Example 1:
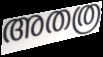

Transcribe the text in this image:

അതത്ര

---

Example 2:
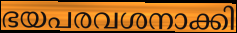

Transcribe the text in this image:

ഭയപരവശനാക്കി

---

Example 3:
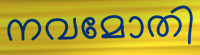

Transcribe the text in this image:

നവമോതി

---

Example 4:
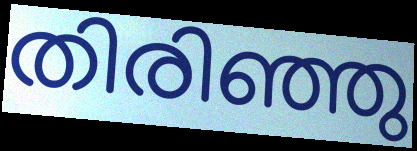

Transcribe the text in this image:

തിരിഞ്ഞു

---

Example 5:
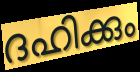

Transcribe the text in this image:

ദഹിക്കും